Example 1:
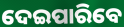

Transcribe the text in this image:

ଦେଇପାରିବେ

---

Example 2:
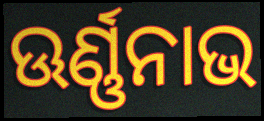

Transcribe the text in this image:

ଊର୍ଣ୍ଣନାଭ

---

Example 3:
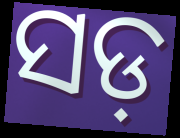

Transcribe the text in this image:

ସଡ଼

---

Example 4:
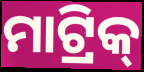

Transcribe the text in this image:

ମାଟ୍ରିକ୍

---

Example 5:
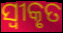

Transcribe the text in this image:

ସ୍ବୀକୃତ